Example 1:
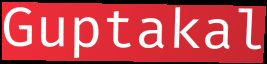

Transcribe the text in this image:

Guptakal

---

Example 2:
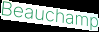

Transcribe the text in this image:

Beauchamp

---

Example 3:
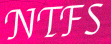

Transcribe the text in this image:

NTFS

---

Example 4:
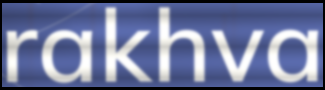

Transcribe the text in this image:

rakhva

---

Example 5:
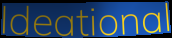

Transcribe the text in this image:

Ideational